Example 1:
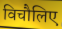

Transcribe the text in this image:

विचौलिए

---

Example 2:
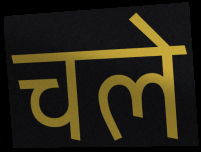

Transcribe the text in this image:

चले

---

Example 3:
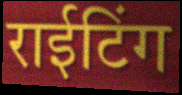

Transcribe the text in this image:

राईटिंग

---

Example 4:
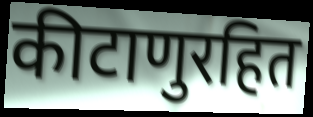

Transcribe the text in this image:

कीटाणुरहित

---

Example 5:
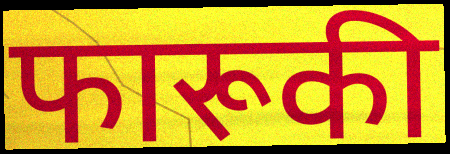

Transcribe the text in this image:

फारूकी